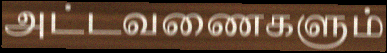
அட்டவணைகளும்